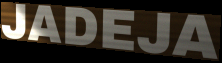
JADEJA